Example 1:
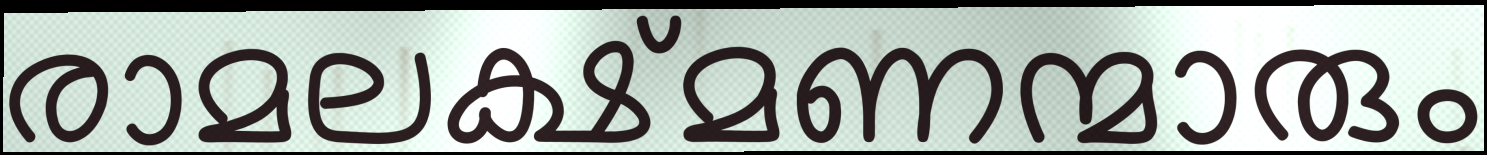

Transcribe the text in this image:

രാമലക്ഷ്മണന്മാരും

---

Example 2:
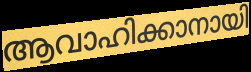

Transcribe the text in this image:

ആവാഹിക്കാനായി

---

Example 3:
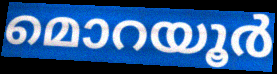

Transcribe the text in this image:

മൊറയൂർ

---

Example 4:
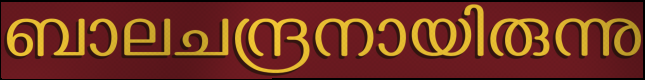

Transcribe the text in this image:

ബാലചന്ദ്രനായിരുന്നു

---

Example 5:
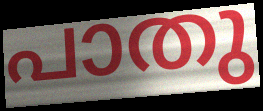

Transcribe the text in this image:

പാതു